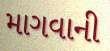
માગવાની